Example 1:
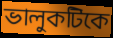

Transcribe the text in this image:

ভালুকটিকে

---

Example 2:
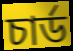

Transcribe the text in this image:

চার্ড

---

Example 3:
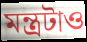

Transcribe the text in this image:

মন্ত্রটাও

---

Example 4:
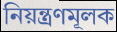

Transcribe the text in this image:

নিয়ন্ত্রণমূলক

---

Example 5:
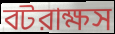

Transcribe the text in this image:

বটরাক্ষস